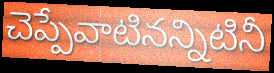
చెప్పేవాటినన్నిటినీ